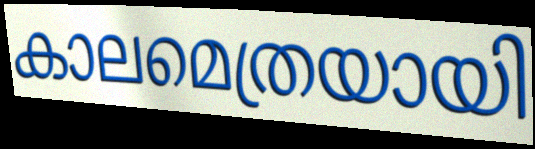
കാലമെത്രയായി